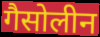
गैसोलीन